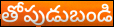
తోపుడుబండి